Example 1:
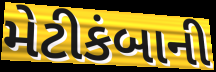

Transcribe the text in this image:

મેટીકંબાની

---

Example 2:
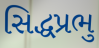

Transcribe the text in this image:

સિદ્ધપ્રભુ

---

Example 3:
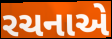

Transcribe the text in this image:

રચનાએ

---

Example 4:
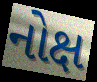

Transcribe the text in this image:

નોક્ષ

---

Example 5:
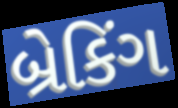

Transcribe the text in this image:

બ્રેકિંગ